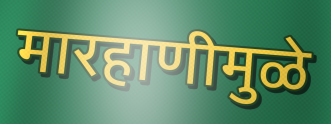
मारहाणीमुळे